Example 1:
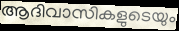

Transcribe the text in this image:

ആദിവാസികളുടെയും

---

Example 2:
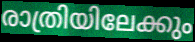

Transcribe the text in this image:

രാത്രിയിലേക്കും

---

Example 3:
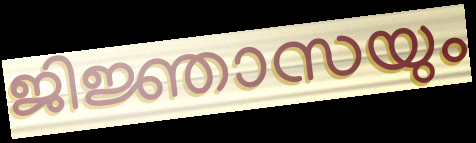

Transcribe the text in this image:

ജിജ്ഞാസയും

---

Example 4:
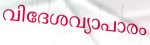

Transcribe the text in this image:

വിദേശവ്യാപാരം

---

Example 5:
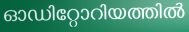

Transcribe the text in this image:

ഓഡിറ്റോറിയത്തിൽ